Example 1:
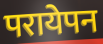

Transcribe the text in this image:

परायेपन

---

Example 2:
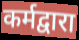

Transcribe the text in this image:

कर्मद्वारा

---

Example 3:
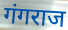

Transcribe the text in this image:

गंगराज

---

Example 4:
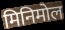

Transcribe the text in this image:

मिनिमोल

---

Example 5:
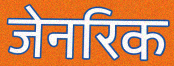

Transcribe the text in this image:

जेनरिक